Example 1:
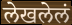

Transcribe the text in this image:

लेखलेलं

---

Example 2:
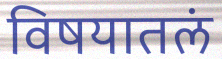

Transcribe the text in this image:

विषयातलं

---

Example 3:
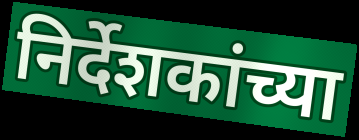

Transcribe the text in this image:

निर्देशकांच्या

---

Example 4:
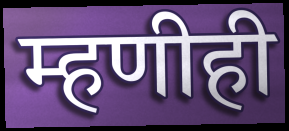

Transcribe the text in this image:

म्हणीही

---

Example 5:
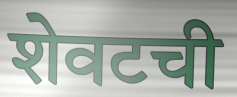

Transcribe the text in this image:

शेवटची